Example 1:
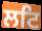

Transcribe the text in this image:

ਲਟਿ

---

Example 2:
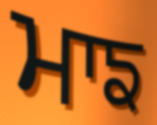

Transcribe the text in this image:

ਮਾਙ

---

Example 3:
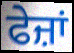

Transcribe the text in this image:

ਫੇਜ਼ਾਂ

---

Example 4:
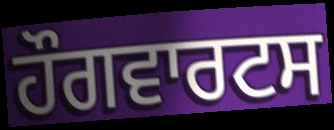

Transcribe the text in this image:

ਹੌਗਵਾਰਟਸ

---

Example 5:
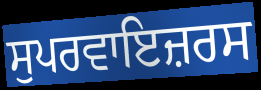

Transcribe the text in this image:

ਸੁਪਰਵਾਇਜ਼ਰਸ